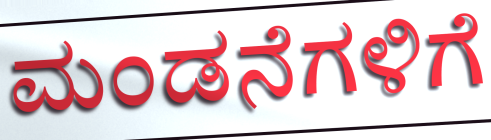
ಮಂಡನೆಗಳಿಗೆ